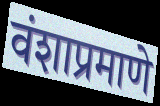
वंशाप्रमाणे